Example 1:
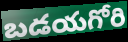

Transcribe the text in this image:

బడయగోరి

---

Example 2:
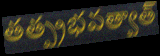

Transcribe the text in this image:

తత్ప్రభవత్వాత్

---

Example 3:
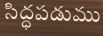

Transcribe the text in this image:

సిద్ధపడుము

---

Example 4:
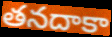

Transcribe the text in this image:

తనదాకా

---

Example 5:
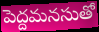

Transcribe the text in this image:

పెద్దమనసుతో